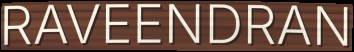
RAVEENDRAN